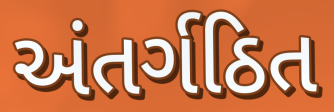
અંતર્ગઠિત